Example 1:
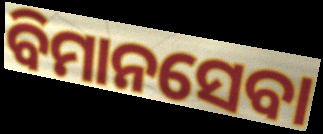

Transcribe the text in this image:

ବିମାନସେବା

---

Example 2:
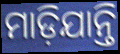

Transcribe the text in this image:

ମାଡ଼ିଯାନ୍ତି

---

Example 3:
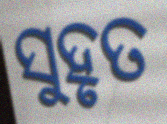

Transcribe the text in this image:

ସୁହୃତ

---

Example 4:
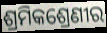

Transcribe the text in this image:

ଶ୍ରମିକଶ୍ରେଣୀର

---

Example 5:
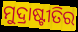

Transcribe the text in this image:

ମୁଦ୍ରାଷ୍ଟୀତିର